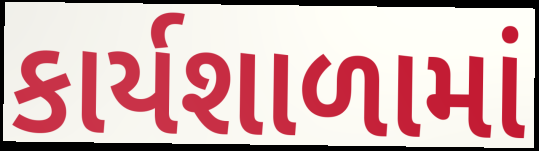
કાર્યશાળામાં